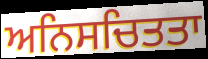
ਅਨਿਸਚਿਤਤਾ